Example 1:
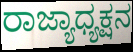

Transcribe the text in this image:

ರಾಜ್ಯಾಧ್ಯಕ್ಷನ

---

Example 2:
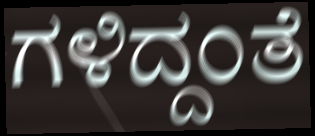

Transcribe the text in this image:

ಗಳಿದ್ದಂತೆ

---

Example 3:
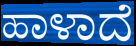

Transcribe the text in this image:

ಹಾಳಾದೆ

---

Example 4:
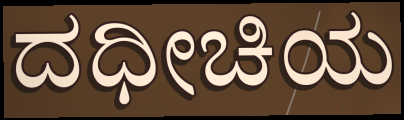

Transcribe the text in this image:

ದಧೀಚಿಯ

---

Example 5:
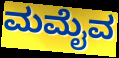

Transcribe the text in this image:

ಮಮೈವ